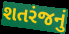
શતરંજનું